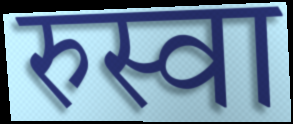
रुस्वा